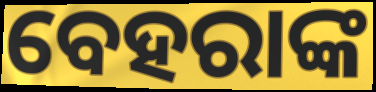
ବେହରାଙ୍କ